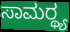
ಸಾಮರ್‍ಥ್ಯ